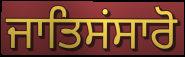
ਜਾਤਿਸਂਸਾਰੋ